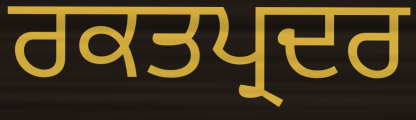
ਰਕਤਪ੍ਰਦਰ